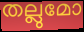
തല്ലുമോ